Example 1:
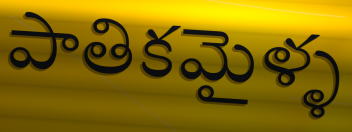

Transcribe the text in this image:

పాతికమైళ్ళ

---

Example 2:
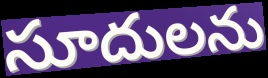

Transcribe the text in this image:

సూదులను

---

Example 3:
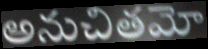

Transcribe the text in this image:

అనుచితమో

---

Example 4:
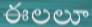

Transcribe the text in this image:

ఈలలూ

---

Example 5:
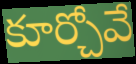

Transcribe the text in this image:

కూర్చోవే